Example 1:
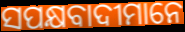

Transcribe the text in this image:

ସପକ୍ଷବାଦୀମାନେ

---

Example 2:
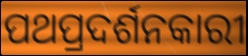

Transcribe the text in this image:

ପଥପ୍ରଦର୍ଶନକାରୀ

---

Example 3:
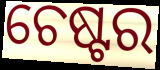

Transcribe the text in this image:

ଚେଷ୍ଟର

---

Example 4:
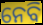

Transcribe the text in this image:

ନେବି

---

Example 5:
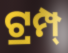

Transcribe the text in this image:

ଟ୍ରମ୍ପ୍